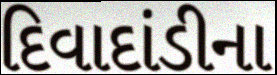
દિવાદાંડીના